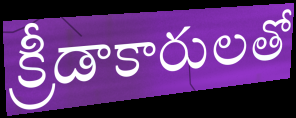
క్రీడాకారులతో